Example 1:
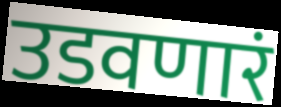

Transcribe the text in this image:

उडवणारं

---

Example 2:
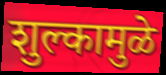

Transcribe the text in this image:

शुल्कामुळे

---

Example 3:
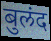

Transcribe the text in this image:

बुलंद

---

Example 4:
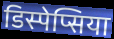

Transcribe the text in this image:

डिस्पेप्सिया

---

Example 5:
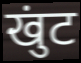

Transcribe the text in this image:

खुंट